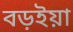
বড়ইয়া